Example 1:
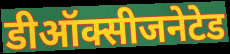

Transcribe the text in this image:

डीऑक्सीजनेटेड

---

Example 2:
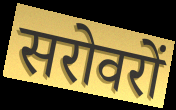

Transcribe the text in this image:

सरोवरों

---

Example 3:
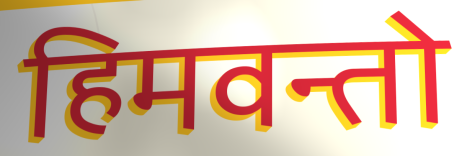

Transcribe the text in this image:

हिमवन्तो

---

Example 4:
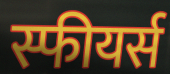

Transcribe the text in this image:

स्फीयर्स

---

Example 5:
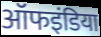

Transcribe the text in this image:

ऑफइंडिया